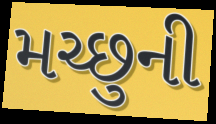
મચ્છુની